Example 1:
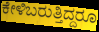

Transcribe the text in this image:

ಕೇಳಿಬರುತ್ತಿದ್ದರೂ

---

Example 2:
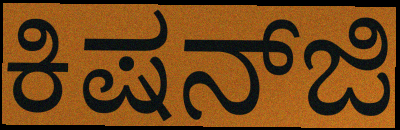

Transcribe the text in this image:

ಕಿಷನ್‌ಜಿ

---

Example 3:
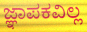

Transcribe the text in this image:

ಜ್ಞಾಪಕವಿಲ್ಲ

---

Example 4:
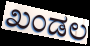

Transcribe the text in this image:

ಖಂಡಲ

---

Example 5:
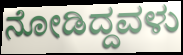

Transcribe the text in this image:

ನೋಡಿದ್ದವಳು